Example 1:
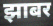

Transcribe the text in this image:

झाबर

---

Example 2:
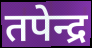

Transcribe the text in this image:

तपेन्द्र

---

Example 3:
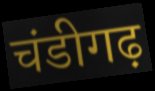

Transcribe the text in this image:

चंडीगढ़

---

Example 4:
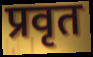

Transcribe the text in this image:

प्रवृत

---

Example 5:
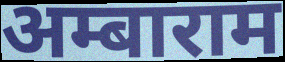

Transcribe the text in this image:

अम्बाराम